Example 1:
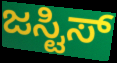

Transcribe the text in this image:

ಜಸ್ಟಿಸ್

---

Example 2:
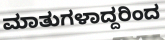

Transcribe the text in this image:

ಮಾತುಗಳಾದ್ದರಿಂದ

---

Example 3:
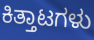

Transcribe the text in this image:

ಕಿತ್ತಾಟಗಳು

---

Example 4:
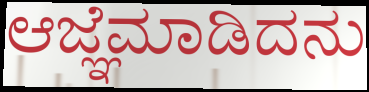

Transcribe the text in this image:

ಆಜ್ಞೆಮಾಡಿದನು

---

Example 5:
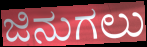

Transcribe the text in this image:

ಜಿನುಗಲು